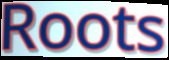
Roots